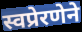
स्वप्रेरणेने